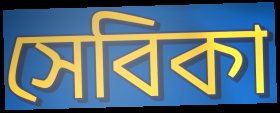
সেবিকা